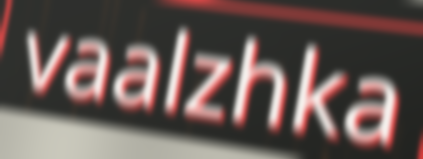
vaalzhka